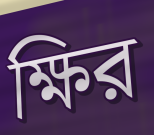
ক্ষির